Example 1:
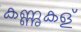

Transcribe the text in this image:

കണ്ണുകള്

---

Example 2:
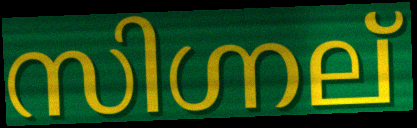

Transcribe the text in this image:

സിഗ്നല്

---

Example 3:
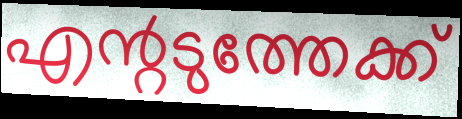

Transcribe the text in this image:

എന്റടുത്തേക്ക്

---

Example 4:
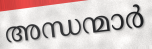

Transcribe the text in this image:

അന്ധന്മാർ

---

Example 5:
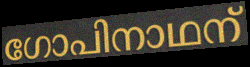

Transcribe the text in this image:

ഗോപിനാഥന്